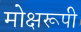
मोक्षरूपी